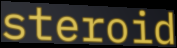
steroid